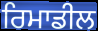
ਰਿਮਾਡੀਲ